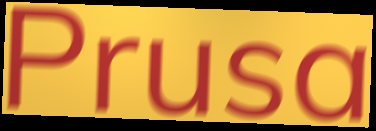
Prusa